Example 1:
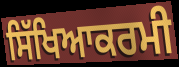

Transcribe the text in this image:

ਸਿੱਖਿਆਕਰਮੀ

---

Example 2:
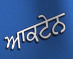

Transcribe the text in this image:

ਆਕਟੇਨ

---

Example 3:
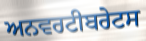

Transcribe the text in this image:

ਅਨਵਰਟੀਬਰੇਟਸ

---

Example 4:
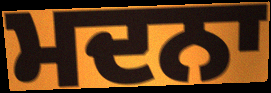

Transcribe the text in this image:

ਮਦਨਾ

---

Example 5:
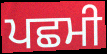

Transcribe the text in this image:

ਪਛਮੀ